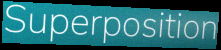
Superposition